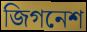
জিগনেশ